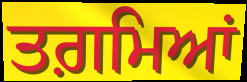
ਤਗ਼ਮਿਆਂ